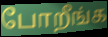
போறீங்க